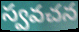
స్వవచన